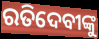
ରତିଦେବୀଙ୍କୁ